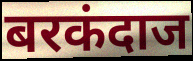
बरकंदाज